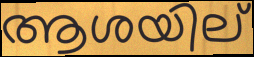
ആശയില്